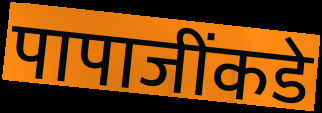
पापाजींकडे